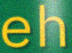
eh